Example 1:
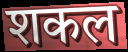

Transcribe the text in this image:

शकल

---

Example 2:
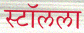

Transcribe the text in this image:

स्टॉलला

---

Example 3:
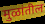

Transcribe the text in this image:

मुळांतील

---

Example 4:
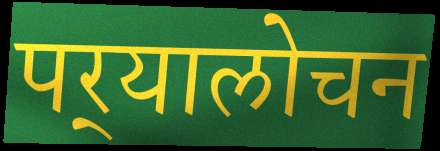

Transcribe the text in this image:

पर्यालोचन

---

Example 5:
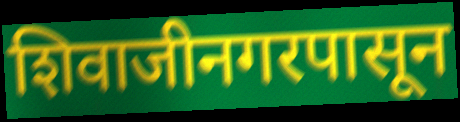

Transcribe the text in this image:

शिवाजीनगरपासून